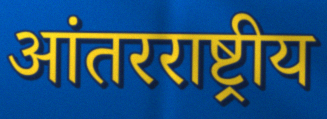
आंतरराष्ट्रीय